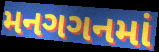
મનગગનમાં